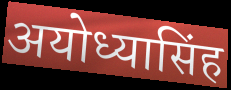
अयोध्यासिंह